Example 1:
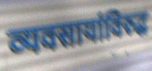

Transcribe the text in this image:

व्यवसायांविरुद्ध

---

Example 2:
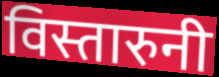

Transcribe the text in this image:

विस्तारुनी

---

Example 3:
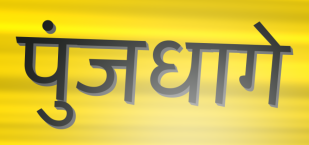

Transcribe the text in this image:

पुंजधागे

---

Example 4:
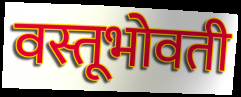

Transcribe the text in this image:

वस्तूभोवती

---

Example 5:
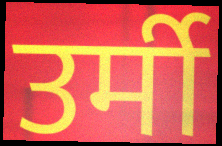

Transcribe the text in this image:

उर्मी